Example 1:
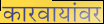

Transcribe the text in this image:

कारवायांवर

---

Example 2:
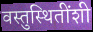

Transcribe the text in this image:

वस्तुस्थितींशी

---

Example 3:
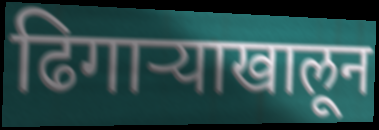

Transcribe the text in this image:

ढिगाऱ्याखालून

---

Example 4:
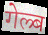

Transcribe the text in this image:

गेल्ब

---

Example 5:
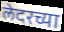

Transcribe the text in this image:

लेदरच्या